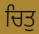
ਚਿਤੁ